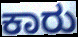
ಕಾರು